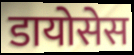
डायोसेस